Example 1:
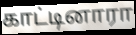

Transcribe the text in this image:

காட்டினாரா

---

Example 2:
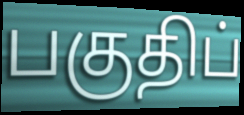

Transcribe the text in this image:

பகுதிப்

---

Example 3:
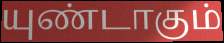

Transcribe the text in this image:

யுண்டாகும்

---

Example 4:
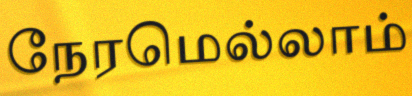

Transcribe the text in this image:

நேரமெல்லாம்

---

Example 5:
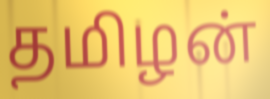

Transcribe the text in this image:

தமிழன்